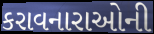
કરાવનારાઓની